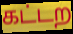
கட்டற